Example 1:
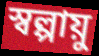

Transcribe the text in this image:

স্বল্পায়ু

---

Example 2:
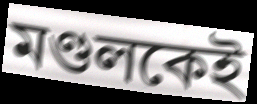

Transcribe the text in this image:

মণ্ডলকেই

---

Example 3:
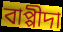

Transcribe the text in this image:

বাপ্পীদা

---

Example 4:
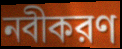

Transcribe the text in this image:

নবীকরণ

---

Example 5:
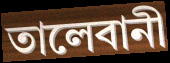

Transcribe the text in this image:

তালেবানী